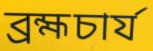
ব্রহ্মচার্য